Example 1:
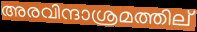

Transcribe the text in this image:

അരവിന്ദാശ്രമത്തില്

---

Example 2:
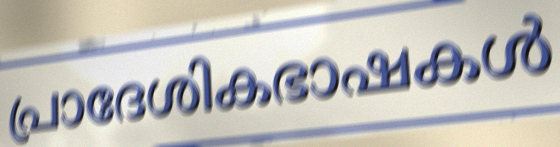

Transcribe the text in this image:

പ്രാദേശികഭാഷകൾ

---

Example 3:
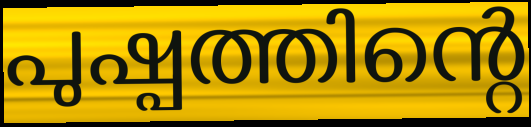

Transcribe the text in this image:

പുഷ്പത്തിന്റെ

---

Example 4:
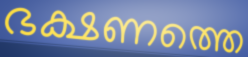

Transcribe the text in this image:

ഭക്ഷണത്തെ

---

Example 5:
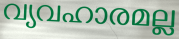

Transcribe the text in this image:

വ്യവഹാരമല്ല